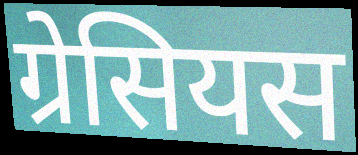
ग्रेसियस